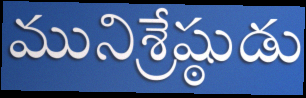
మునిశ్రేష్ఠుడు